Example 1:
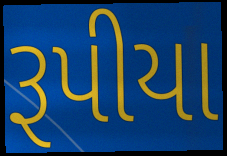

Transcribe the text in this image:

રૂપીયા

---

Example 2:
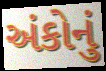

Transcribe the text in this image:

અંકોનું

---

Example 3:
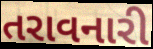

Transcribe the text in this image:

તરાવનારી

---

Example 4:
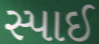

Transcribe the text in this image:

સ્પાઈ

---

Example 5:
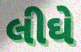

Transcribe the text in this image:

લીઘે